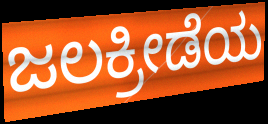
ಜಲಕ್ರೀಡೆಯ